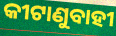
କୀଟାଣୁବାହୀ